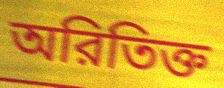
অরিতিক্ত